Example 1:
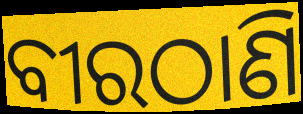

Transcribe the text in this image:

ବୀରଠାଣି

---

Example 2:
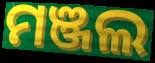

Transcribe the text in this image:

ମଞ୍ଜଲ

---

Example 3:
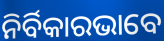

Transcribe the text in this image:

ନିର୍ବିକାରଭାବେ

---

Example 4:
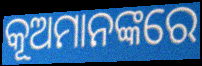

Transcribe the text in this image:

କୂଅମାନଙ୍କରେ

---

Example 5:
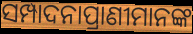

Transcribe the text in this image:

ସମ୍ପାଦନାପ୍ରାଣୀମାନଙ୍କ